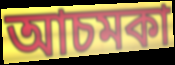
আচমকা